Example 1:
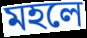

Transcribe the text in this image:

মহলে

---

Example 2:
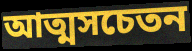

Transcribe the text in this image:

আত্মসচেতন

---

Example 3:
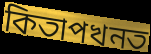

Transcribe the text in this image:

কিতাপখনত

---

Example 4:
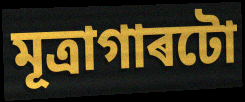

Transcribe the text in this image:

মূত্ৰাগাৰটো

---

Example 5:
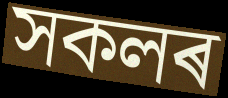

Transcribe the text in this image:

সকলৰ